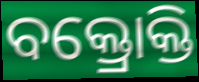
ବକ୍ତ୍ରୋକ୍ତି